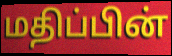
மதிப்பின்